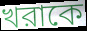
খরাকে